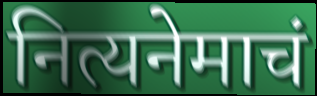
नित्यनेमाचं